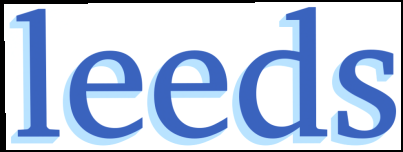
leeds